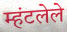
म्हंटलेले